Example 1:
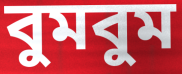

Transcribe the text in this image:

বুমবুম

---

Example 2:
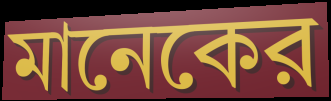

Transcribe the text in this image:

মানেকের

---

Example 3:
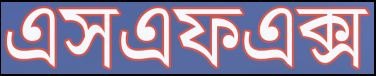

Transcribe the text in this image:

এসএফএক্স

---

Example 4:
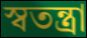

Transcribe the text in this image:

স্বতন্ত্রা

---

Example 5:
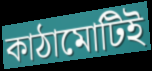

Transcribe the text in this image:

কাঠামোটিই